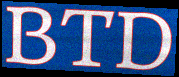
BTD